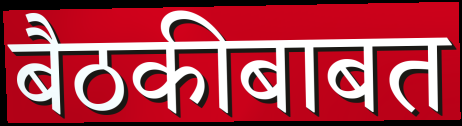
बैठकीबाबत